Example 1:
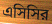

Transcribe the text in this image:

এসিসির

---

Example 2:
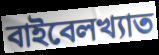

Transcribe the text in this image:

বাইবেলখ্যাত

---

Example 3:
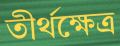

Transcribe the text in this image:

তীর্থক্ষেত্র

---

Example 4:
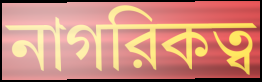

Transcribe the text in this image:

নাগরিকত্ব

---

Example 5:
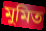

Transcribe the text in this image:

মুমিত